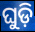
ଘୁଡ଼ି